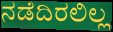
ನಡೆದಿರಲಿಲ್ಲ